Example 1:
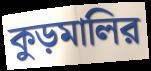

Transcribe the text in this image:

কুড়মালির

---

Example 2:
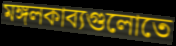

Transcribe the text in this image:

মঙ্গলকাব্যগুলোতে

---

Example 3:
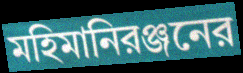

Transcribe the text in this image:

মহিমানিরঞ্জনের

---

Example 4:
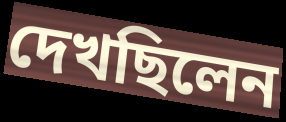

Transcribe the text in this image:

দেখছিলেন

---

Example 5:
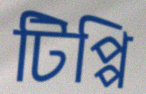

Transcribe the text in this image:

টিপ্পি